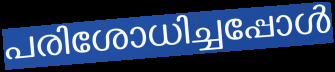
പരിശോധിച്ചപ്പോൾ